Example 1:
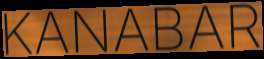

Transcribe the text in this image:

KANABAR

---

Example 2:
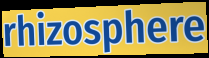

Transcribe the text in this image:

rhizosphere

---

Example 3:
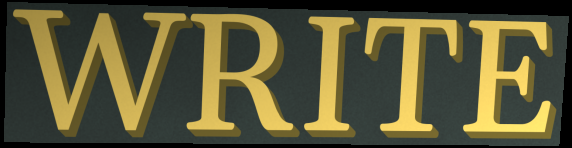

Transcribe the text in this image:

WRITE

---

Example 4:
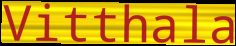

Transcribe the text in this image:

Vitthala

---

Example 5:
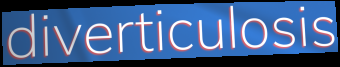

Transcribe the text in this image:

diverticulosis